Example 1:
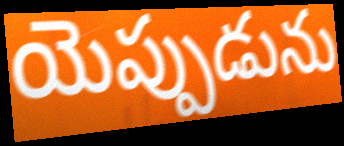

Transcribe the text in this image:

యెప్పుడును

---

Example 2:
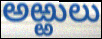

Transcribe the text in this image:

అఱ్ఱులు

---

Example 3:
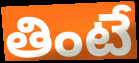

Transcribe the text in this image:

తింటే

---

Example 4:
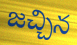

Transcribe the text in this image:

జచ్చిన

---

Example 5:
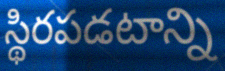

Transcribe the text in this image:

స్థిరపడటాన్ని